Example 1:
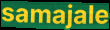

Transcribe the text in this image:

samajale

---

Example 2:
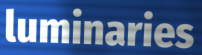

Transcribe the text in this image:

luminaries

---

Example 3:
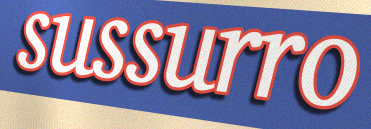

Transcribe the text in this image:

sussurro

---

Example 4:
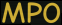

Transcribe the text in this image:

MPO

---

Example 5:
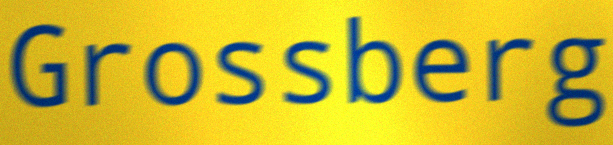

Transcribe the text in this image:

Grossberg